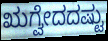
ಋಗ್ವೇದದಷ್ಟು